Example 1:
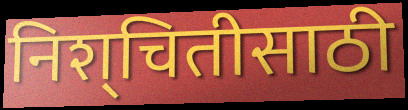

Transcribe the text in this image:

निश्चितीसाठी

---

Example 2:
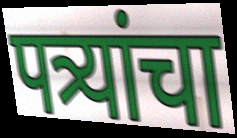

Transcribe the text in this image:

पत्र्यांचा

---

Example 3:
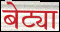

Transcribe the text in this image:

बेट्या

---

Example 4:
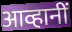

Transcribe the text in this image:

आव्हानीं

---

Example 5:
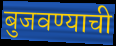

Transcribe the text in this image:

बुजवण्याची